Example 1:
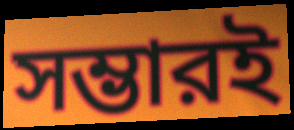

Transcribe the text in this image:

সম্ভারই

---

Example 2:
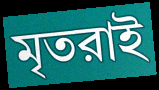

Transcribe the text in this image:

মৃতরাই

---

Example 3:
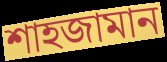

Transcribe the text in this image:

শাহজামান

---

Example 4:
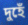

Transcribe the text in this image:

দুহেঁ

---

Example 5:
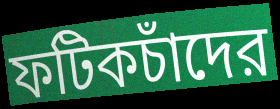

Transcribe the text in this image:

ফটিকচাঁদের